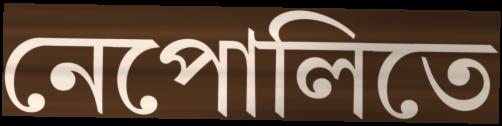
নেপোলিতে